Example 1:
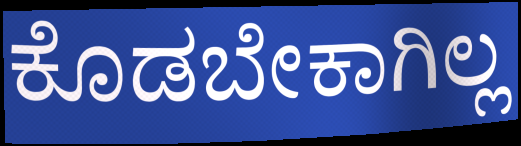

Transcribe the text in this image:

ಕೊಡಬೇಕಾಗಿಲ್ಲ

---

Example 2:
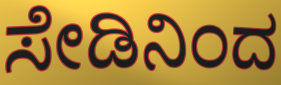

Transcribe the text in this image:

ಸೇಡಿನಿಂದ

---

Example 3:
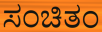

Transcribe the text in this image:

ಸಂಚಿತಂ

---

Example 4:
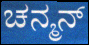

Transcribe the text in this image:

ಚನ್ಮನ್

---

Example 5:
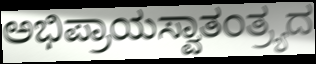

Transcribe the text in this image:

ಅಭಿಪ್ರಾಯಸ್ವಾತಂತ್ರ್ಯದ